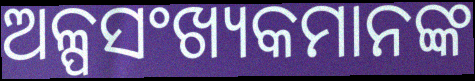
ଅଳ୍ପସଂଖ୍ୟକମାନଙ୍କ